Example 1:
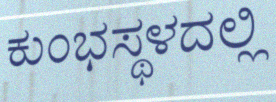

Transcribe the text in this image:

ಕುಂಭಸ್ಥಳದಲ್ಲಿ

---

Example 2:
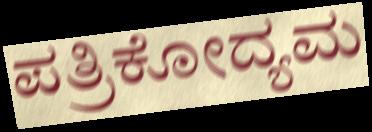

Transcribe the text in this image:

ಪತ್ರಿಕೋದ್ಯಮ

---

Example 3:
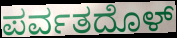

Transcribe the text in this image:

ಪರ್ವತದೊಳ್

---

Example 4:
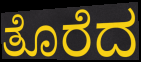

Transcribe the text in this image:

ತೊರೆದ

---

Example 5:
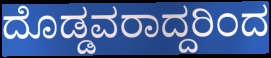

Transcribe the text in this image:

ದೊಡ್ಡವರಾದ್ದರಿಂದ